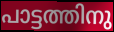
പാട്ടത്തിനു